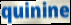
quinine